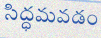
సిద్ధమవడం